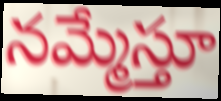
నమ్మేస్తూ